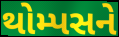
થોમ્પસને